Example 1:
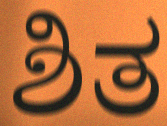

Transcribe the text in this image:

ಶಿತ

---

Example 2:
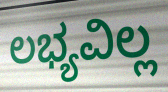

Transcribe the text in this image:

ಲಭ್ಯವಿಲ್ಲ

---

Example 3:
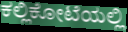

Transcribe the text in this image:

ಕಲ್ಲಿಕೋಟೆಯಲ್ಲಿ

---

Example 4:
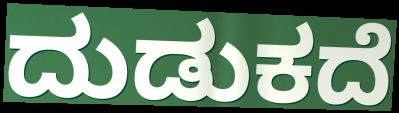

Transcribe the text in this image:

ದುಡುಕದೆ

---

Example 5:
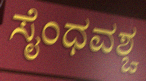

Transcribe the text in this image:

ಸೈಂಧವಶ್ಚ